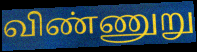
விண்ணுறு